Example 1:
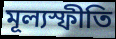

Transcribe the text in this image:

মূল্যস্ফীতি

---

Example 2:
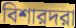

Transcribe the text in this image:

বিশারদরা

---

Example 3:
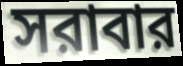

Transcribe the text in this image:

সরাবার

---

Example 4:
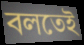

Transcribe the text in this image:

বলতেই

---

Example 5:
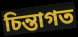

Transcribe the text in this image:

চিন্তাগত